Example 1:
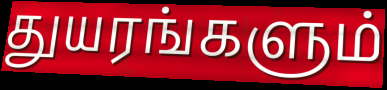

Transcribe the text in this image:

துயரங்களும்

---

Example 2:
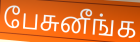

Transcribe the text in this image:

பேசுனீங்க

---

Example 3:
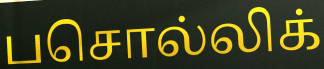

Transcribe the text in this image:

பசொல்லிக்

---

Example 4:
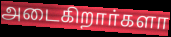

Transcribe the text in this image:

அடைகிறார்களா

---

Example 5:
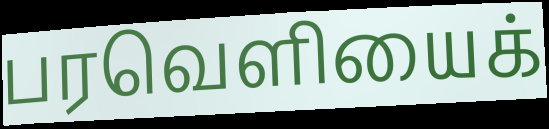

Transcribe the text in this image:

பரவெளியைக்